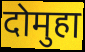
दोमुहा